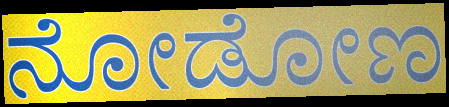
ನೋಡೋಣ